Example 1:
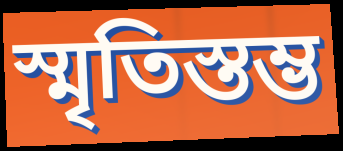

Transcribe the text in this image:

স্মৃতিস্তম্ভ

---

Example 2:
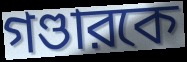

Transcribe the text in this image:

গণ্ডারকে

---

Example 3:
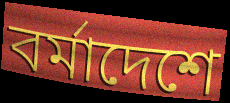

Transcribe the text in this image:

বর্মাদেশে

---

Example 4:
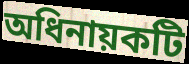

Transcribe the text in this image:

অধিনায়কটি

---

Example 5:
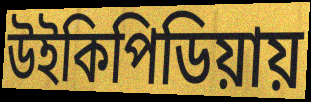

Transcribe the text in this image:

উইকিপিডিয়ায়